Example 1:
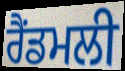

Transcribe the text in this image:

ਰੈਂਡਮਲੀ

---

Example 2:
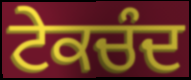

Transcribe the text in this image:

ਟੇਕਚੰਦ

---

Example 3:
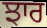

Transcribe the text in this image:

ਝਾਰ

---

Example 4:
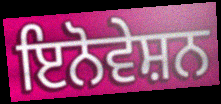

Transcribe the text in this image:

ਇਨੋਵੇਸ਼ਨ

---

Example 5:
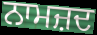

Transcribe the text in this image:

ਨਾਮਜ਼ਦ